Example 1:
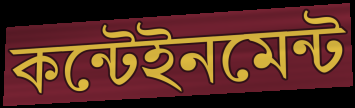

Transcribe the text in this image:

কন্টেইনমেন্ট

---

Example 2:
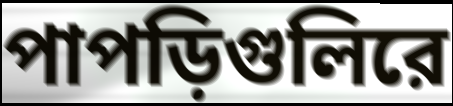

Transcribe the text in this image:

পাপড়িগুলিরে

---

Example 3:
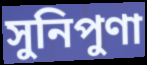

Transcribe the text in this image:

সুনিপুণা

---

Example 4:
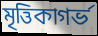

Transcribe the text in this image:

মৃত্তিকাগর্ভ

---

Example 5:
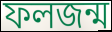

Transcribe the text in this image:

ফলজন্ম